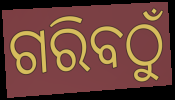
ଗରିବଠୁଁ